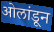
ओलांडून